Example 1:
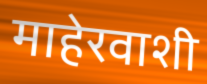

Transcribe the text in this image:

माहेरवाशी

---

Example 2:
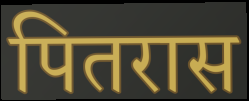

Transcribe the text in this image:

पितरास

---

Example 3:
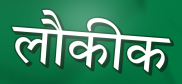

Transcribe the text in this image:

लौकीक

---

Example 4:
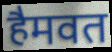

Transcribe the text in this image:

हैमवत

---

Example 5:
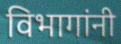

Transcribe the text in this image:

विभागांनी